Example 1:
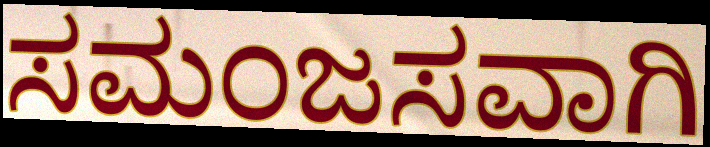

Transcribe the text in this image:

ಸಮಂಜಸವಾಗಿ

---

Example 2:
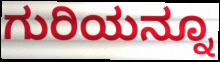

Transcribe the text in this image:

ಗುರಿಯನ್ನೂ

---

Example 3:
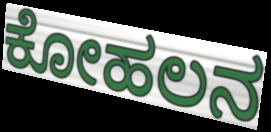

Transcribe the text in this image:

ಕೋಹಲನ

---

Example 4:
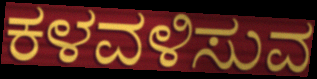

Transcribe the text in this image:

ಕಳವಳಿಸುವ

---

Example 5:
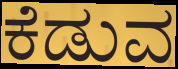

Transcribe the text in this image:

ಕೆಡುವ